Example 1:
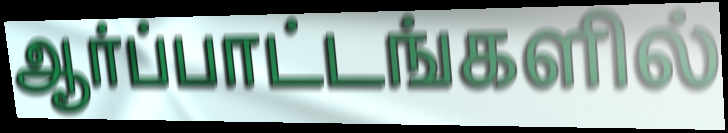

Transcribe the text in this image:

ஆர்ப்பாட்டங்களில்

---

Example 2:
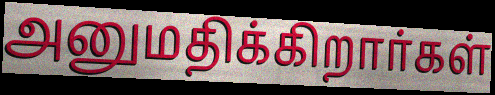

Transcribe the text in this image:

அனுமதிக்கிறார்கள்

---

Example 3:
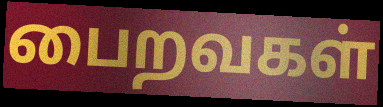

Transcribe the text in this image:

பைறவகள்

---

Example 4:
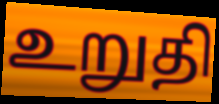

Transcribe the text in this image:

உறுதி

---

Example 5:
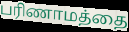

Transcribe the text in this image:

பரிணாமத்தை